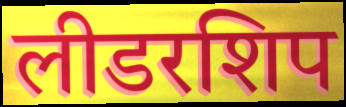
लीडरशिप